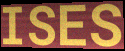
ISES